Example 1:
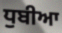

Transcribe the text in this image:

ਧੁਬੀਆ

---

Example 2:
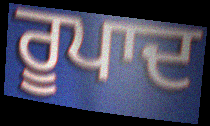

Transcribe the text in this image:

ਰੂਪਾਦ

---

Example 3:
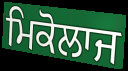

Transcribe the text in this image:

ਮਿਕੋਲਾਜ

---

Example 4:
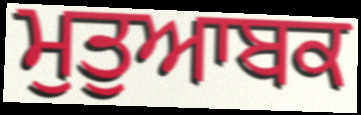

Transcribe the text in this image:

ਮੁਤੁਆਬਕ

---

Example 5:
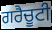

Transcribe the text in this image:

ਗਰੈਚੂਟੀ